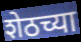
शेठच्या